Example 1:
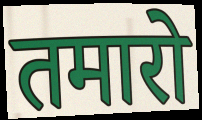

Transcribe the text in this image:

तमारो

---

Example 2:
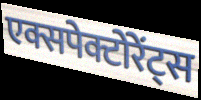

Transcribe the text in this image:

एक्सपेक्टोरेंट्स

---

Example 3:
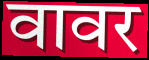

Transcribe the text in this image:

वावर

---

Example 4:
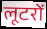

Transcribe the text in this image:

लूटरों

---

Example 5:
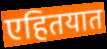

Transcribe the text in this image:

एहितयात